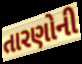
તારણોની